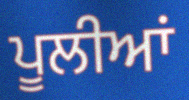
ਪੂਲੀਆਂ